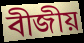
বীজীয়